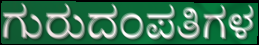
ಗುರುದಂಪತಿಗಳ